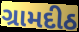
ગ્રામદીઠ